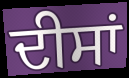
ਦੀਸਾਂ